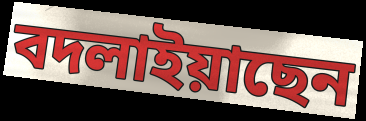
বদলাইয়াছেন